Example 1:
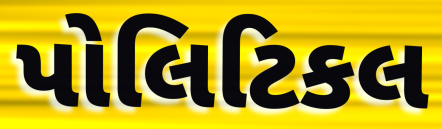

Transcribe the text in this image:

પોલિટિકલ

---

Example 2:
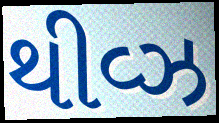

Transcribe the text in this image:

થીવ્ઝ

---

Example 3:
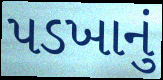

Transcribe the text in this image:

પડખાનું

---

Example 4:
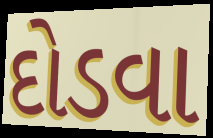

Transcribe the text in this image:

દોડવા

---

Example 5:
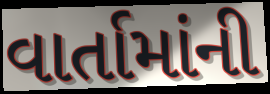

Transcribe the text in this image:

વાર્તામાંની